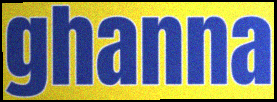
ghanna